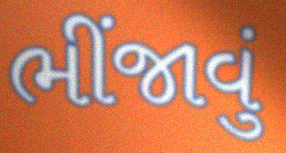
ભીંજાવું